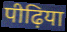
पीढ़िया